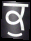
ਕੁ